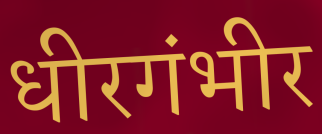
धीरगंभीर